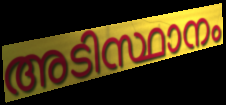
അടിസ്ഥാനം